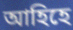
আহিহে